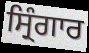
ਸ੍ਰਿੰਗਾਰ